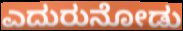
ಎದುರುನೋಡು